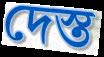
দেস্ত